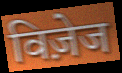
विज़ेज